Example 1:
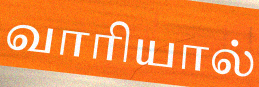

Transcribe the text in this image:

வாரியால்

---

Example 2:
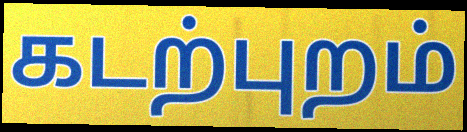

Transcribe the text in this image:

கடற்புறம்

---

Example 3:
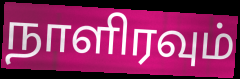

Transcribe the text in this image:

நாளிரவும்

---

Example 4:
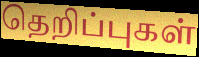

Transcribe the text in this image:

தெறிப்புகள்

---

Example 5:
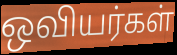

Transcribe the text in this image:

ஒவியர்கள்